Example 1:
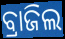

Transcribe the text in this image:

ବ୍ରାଜିଲ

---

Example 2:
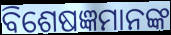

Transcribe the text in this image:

ବିଶେଷଜ୍ଞମାନଙ୍କ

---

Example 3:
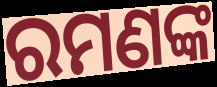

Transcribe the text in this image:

ରମଣଙ୍କ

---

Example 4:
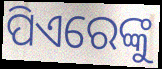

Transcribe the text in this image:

ପିଏରେଙ୍କୁ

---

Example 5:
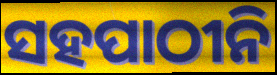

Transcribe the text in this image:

ସହପାଠୀନି